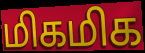
மிகமிக